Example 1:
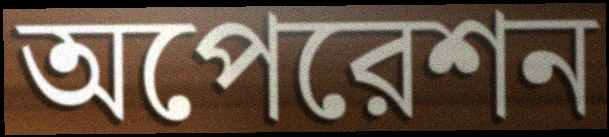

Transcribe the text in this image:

অপেরেশন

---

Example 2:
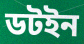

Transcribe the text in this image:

ডটইন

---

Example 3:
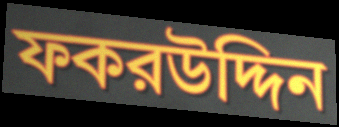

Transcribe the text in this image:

ফকরউদ্দিন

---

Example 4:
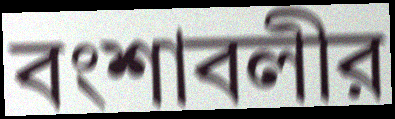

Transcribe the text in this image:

বংশাবলীর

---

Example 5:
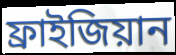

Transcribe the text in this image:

ফ্রাইজিয়ান